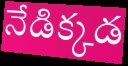
నేడిక్కడ